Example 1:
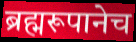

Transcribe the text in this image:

ब्रह्मरूपानेच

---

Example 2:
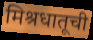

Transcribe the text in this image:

मिश्रधातूची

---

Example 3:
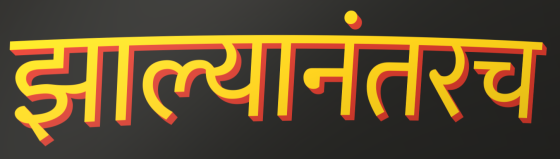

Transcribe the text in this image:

झाल्यानंतरच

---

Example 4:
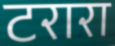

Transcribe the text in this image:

टरारा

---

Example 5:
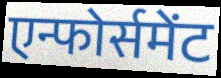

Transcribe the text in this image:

एन्फोर्समेंट